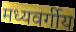
मध्यवर्गीय